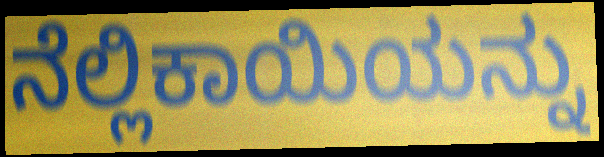
ನೆಲ್ಲಿಕಾಯಿಯನ್ನು